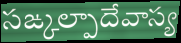
సఙ్కల్పాదేవాస్య